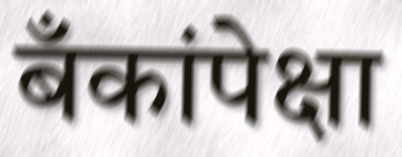
बँकांपेक्षा